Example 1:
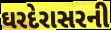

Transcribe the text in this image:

ઘરદેરાસરની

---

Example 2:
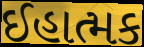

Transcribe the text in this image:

ઈહાત્મક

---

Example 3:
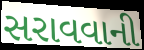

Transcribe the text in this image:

સરાવવાની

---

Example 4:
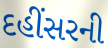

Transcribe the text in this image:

દહીંસરની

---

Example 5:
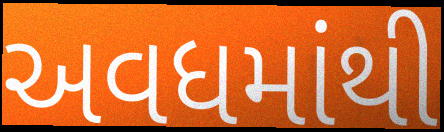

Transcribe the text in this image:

અવધમાંથી